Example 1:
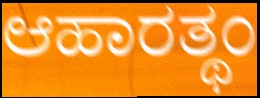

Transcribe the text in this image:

ಆಹಾರತ್ಥಂ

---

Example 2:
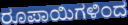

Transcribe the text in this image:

ರೂಪಾಯಿಗಳಿಂದ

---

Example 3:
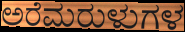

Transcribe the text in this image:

ಅರೆಮರುಳುಗಳ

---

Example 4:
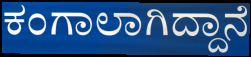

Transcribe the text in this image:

ಕಂಗಾಲಾಗಿದ್ದಾನೆ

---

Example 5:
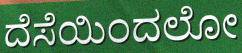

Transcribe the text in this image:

ದೆಸೆಯಿಂದಲೋ